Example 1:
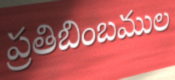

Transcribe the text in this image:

ప్రతిబింబముల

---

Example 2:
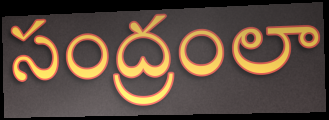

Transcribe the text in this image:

సంద్రంలా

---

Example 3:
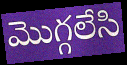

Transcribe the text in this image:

మొగ్గలేసి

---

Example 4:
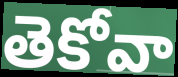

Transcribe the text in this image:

తెకోవా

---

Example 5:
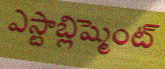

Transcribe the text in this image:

ఎస్టాబ్లిష్మెంట్